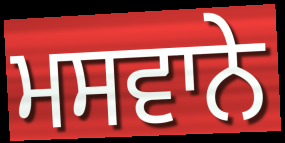
ਮਸਵਾਨੇ